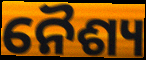
ନୈଶ୍ୟ